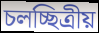
চলচ্ছিত্ৰীয়